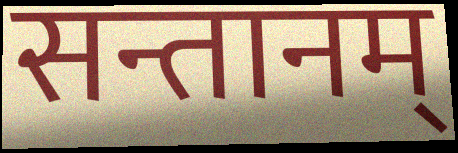
सन्तानम्